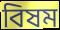
বিষম